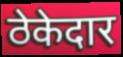
ठेकेदार